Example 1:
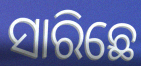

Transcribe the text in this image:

ସାରିଛେ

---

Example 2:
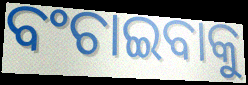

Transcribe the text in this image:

ବଂଚାଇବାକୁ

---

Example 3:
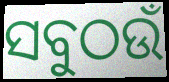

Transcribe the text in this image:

ସବୁଠଉଁ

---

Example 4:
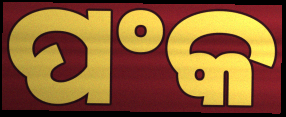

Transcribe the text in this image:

ପଂକ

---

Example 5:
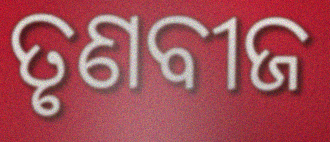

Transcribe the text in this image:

ତୃଣବୀଜ